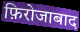
फ़िरोजाबाद